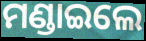
ମଣ୍ଡାଇଲେ